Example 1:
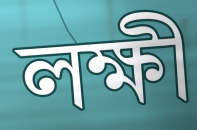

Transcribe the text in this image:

লক্ষী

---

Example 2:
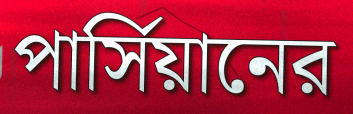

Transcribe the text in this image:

পার্সিয়ানের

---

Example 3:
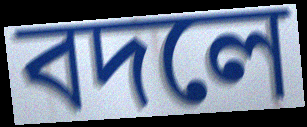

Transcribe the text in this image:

বদলে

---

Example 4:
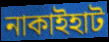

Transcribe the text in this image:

নাকাইহাট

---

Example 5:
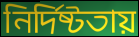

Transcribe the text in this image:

নির্দিষ্টতায়